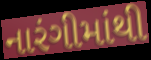
નારંગીમાંથી